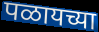
पळायच्या